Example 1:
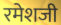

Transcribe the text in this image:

रमेशजी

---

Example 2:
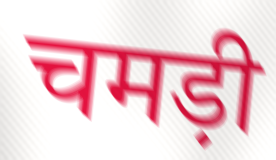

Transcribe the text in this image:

चमड़ी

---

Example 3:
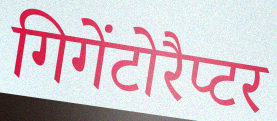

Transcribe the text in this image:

गिगेंटोरैप्टर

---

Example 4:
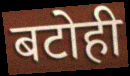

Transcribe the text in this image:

बटोही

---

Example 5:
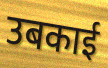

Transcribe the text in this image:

उबकाई